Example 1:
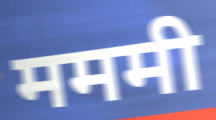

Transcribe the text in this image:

मममी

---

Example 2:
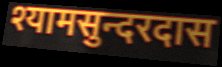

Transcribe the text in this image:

श्यामसुन्दरदास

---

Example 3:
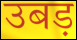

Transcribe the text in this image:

उबड़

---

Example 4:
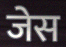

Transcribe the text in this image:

जेस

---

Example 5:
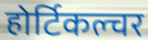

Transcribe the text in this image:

होर्टिकल्चर